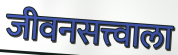
जीवनसत्त्वाला